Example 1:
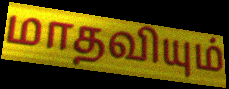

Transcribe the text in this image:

மாதவியும்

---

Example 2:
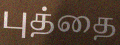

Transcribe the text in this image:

புத்தை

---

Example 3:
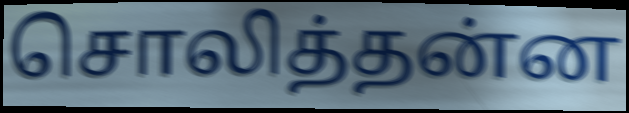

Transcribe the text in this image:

சொலித்தன்ன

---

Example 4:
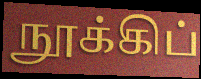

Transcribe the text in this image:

நூக்கிப்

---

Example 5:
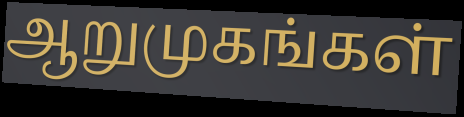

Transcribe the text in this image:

ஆறுமுகங்கள்